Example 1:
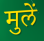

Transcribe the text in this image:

मुलें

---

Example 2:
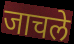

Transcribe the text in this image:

जाचले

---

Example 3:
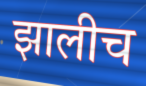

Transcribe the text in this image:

झालीच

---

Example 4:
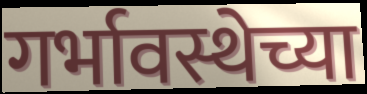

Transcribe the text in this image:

गर्भावस्थेच्या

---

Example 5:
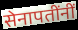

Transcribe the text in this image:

सेनापतींनीं